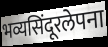
भव्यसिंदूरलेपना